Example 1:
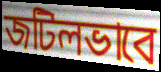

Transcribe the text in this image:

জটিলভাবে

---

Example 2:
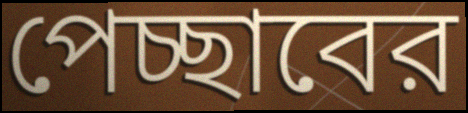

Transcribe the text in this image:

পেচ্ছাবের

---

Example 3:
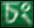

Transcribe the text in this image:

চং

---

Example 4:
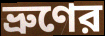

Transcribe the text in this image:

ভ্রুণের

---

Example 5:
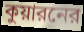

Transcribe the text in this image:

কুয়ারনের